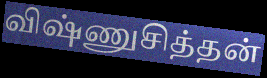
விஷ்ணுசித்தன்